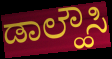
ಡಾಲ್ಹೌಸಿ